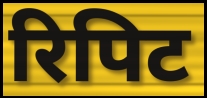
रिपिट